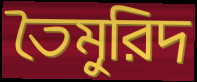
তৈমুরিদ